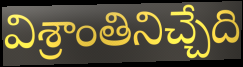
విశ్రాంతినిచ్చేది